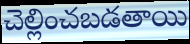
చెల్లించబడతాయి